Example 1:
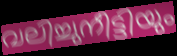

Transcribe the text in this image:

വലിച്ചുനീട്ടിയും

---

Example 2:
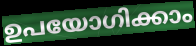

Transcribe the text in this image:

ഉപയോഗിക്കാം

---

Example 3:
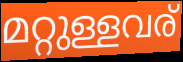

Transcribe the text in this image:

മറ്റുള്ളവര്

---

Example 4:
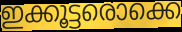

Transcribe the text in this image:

ഇക്കൂട്ടരൊക്കെ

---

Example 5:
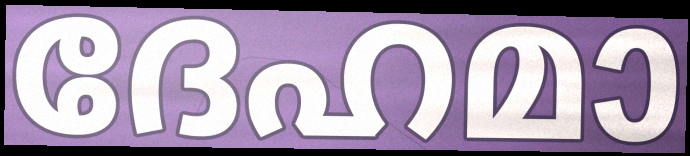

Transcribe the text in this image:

ദേഹമാ